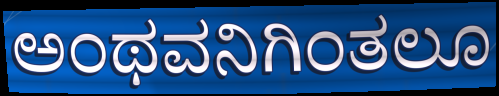
ಅಂಥವನಿಗಿಂತಲೂ